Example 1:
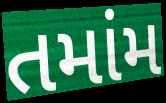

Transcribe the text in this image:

તમાંમ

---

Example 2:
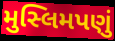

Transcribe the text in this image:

મુસ્લિમપણું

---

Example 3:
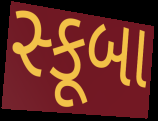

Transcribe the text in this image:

સ્કૂબા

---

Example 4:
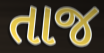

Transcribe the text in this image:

તાજ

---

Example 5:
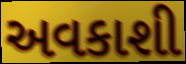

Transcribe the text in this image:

અવકાશી